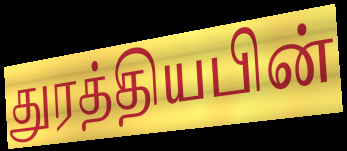
துரத்தியபின்